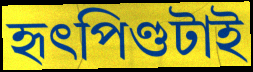
হৃৎপিণ্ডটাই